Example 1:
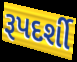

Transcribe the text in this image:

રૂપદર્શી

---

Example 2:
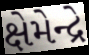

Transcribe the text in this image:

ક્ષેમેન્દ્રે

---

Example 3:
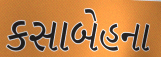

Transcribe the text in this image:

કસાબેહના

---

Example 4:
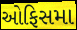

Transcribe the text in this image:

ઓફિસમા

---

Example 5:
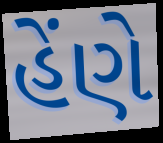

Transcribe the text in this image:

હેંણે